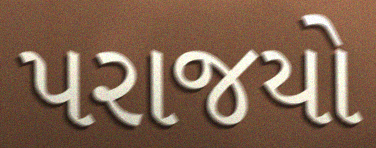
પરાજયો